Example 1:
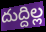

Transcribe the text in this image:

దుద్దిల్ల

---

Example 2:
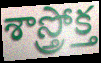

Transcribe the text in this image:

శాస్త్రోక్త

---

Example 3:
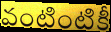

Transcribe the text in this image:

వంటింటికీ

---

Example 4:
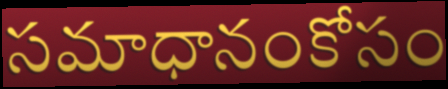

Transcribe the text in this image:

సమాధానంకోసం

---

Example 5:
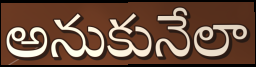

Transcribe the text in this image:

అనుకునేలా